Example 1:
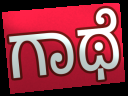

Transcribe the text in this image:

ಗಾಥೆ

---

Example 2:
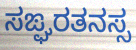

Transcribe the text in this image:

ಸಙ್ಘರತನಸ್ಸ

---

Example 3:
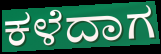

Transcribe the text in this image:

ಕಳೆದಾಗ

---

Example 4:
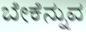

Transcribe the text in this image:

ಬೇಕೆನ್ನುವ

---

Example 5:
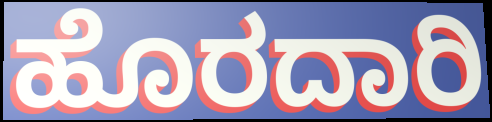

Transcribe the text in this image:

ಹೊರದಾರಿ